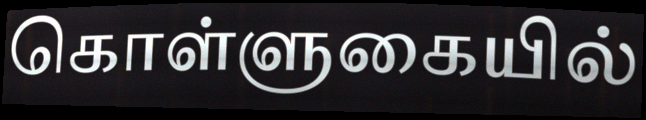
கொள்ளுகையில்